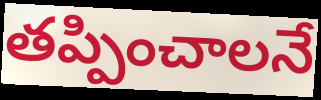
తప్పించాలనే